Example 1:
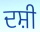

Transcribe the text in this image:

ਦਸ਼ੀ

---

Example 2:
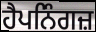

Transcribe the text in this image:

ਹੈਪਨਿੰਗਜ਼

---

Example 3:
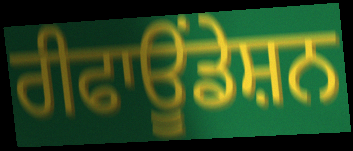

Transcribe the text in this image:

ਰੀਫਾਊਂਡੇਸ਼ਨ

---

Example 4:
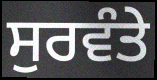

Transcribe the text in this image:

ਸੁਰਵੰਤੇ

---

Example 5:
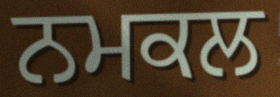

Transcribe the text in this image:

ਨਮਕਲ